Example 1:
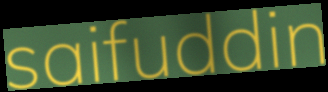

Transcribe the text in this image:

saifuddin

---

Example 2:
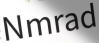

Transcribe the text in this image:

Nmrad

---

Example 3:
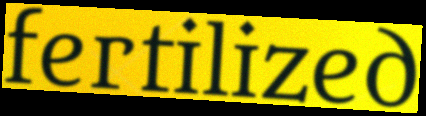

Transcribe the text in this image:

fertilized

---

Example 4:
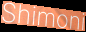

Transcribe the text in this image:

Shimoni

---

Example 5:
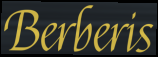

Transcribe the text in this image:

Berberis